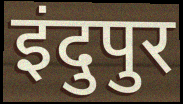
इंदुपुर